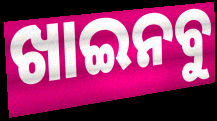
ଖାଇନବୁ